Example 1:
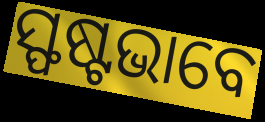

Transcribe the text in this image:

ସ୍ଫଷ୍ଟଭାବେ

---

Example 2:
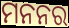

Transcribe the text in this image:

ମନନର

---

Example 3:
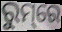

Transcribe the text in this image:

ରୁମ୍‌ରେ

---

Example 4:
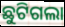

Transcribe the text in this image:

ଛୁଟିଗଲା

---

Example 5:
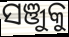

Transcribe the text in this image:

ସଞ୍ଜୁକୁ